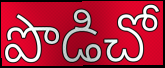
పొడిచో